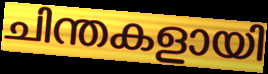
ചിന്തകളായി